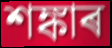
শঙ্কাৰ